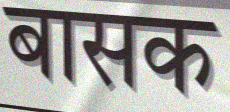
बासक